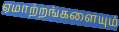
ஏமாற்றங்களையும்